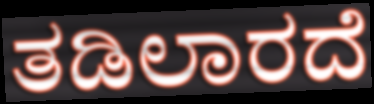
ತಡಿಲಾರದೆ